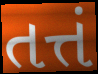
તત્તં